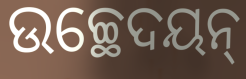
ଉଚ୍ଛେଦୟନ୍